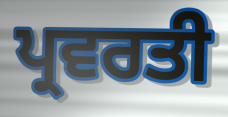
ਪ੍ਰਵਰਤੀ